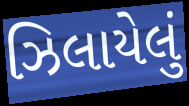
ઝિલાયેલું